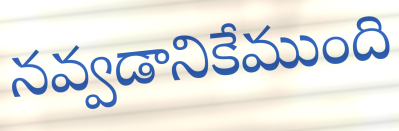
నవ్వడానికేముంది